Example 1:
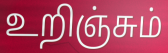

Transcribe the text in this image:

உறிஞ்சும்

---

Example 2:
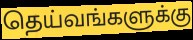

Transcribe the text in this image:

தெய்வங்களுக்கு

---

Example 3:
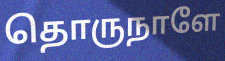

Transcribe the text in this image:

தொருநாளே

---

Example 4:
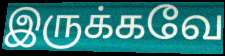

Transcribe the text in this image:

இருக்கவே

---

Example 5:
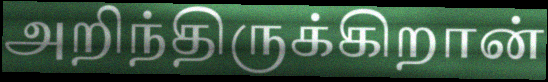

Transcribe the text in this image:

அறிந்திருக்கிறான்